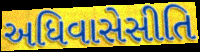
અધિવાસેસીતિ